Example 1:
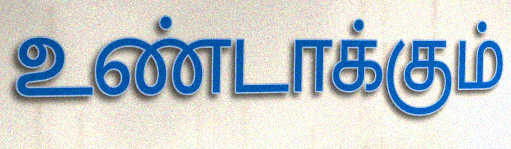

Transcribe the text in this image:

உண்டாக்கும்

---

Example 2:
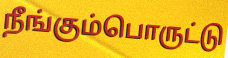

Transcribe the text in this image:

நீங்கும்பொருட்டு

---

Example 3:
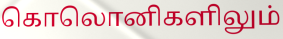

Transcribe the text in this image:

கொலொனிகளிலும்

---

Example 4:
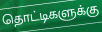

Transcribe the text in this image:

தொட்டிகளுக்கு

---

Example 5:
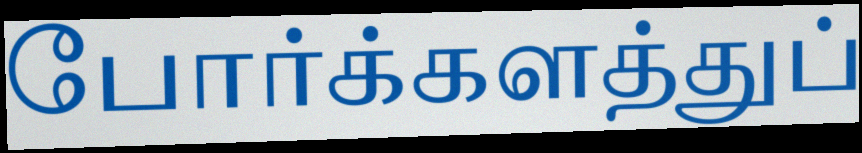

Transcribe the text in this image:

போர்க்களத்துப்